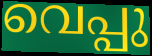
വെപ്പു